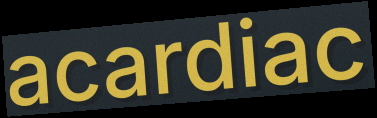
acardiac